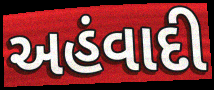
અહંવાદી